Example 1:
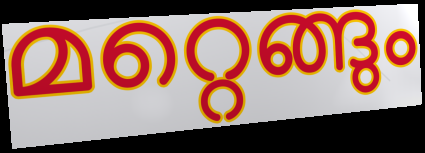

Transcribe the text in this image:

മറ്റെങ്ങും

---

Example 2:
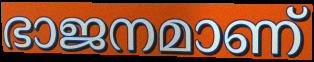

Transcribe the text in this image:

ഭാജനമാണ്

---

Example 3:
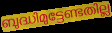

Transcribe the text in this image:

ബുദ്ധിമുട്ടേണ്ടതില്ല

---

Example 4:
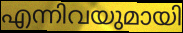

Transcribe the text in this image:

എന്നിവയുമായി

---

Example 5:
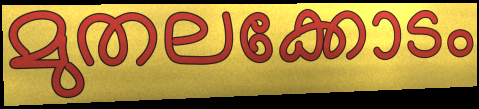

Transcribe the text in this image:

മുതലക്കോടം